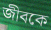
জীবকে